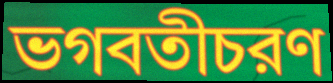
ভগবতীচরণ